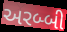
અરબ્બી